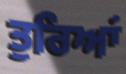
ਤੁਰਿਆਂ